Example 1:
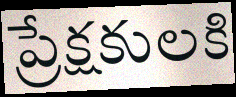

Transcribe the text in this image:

ప్రేక్షకులకి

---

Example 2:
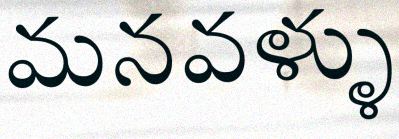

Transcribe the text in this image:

మనవళ్ళు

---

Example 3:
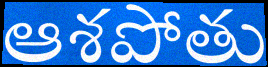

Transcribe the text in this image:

ఆశపోతు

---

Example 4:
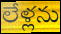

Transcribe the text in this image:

లేళ్లను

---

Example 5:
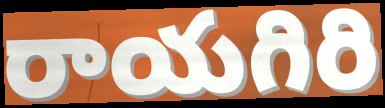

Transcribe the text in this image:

రాయగిరి